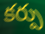
కర్పు